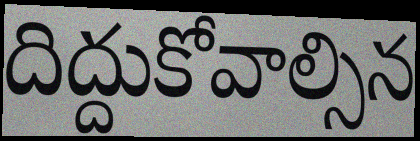
దిద్దుకోవాల్సిన